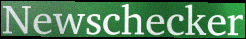
Newschecker